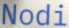
Nodi